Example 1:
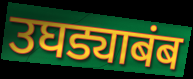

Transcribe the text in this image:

उघड्याबंब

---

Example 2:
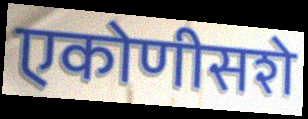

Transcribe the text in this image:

एकोणीसशे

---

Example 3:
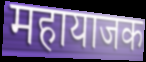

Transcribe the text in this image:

महायाजक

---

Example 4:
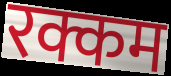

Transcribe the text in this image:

रक्कम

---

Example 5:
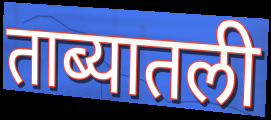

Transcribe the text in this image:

ताब्यातली